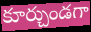
కూర్చుండగా